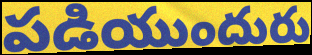
పడియుందురు